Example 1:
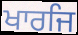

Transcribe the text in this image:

ਖਾਰਜਿ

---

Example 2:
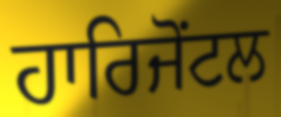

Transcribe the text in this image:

ਹਾਰਿਜੋਂਟਲ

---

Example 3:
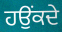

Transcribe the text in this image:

ਹਉਂਕਦੇ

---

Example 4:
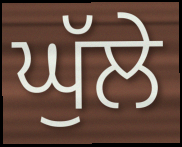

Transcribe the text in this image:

ਘੁੱਲੇ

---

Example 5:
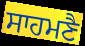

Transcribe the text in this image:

ਸਾਹਮਣੈ